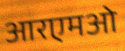
आरएमओ